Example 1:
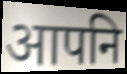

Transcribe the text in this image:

आपनि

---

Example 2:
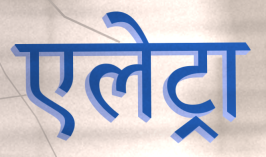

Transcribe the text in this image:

एलेट्रा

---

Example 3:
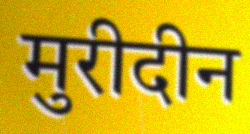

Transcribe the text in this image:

मुरीदीन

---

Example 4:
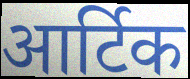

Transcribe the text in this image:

आर्टिक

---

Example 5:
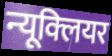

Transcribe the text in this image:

न्‍यूक्‍लियर